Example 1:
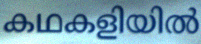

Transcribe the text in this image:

കഥകളിയിൽ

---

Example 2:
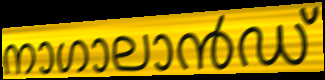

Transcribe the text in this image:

നാഗാലാൻഡ്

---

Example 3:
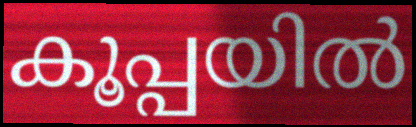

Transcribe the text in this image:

കൂപ്പയിൽ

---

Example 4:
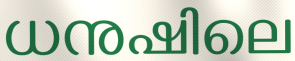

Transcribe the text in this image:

ധനുഷിലെ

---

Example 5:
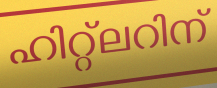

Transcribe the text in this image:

ഹിറ്റ്ലറിന്